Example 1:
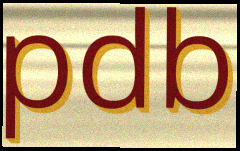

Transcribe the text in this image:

pdb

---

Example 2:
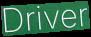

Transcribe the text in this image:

Driver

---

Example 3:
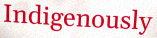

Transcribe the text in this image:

Indigenously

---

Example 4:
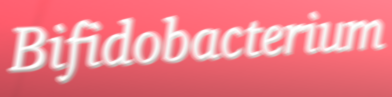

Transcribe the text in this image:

Bifidobacterium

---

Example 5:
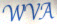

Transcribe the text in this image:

WVA